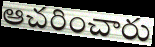
ఆచరించారు